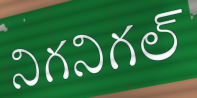
నిగనిగల్